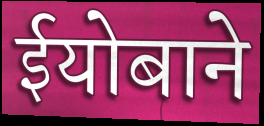
ईयोबाने